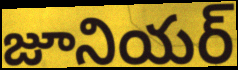
జూనియర్